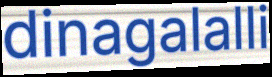
dinagalalli